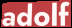
adolf